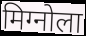
मिग्नोला